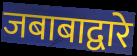
जबाबाद्वारे